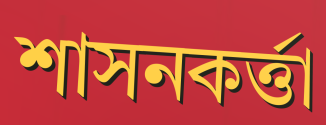
শাসনকৰ্ত্তা